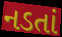
નડતાં